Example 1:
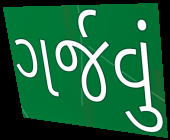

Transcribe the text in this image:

ગર્જવું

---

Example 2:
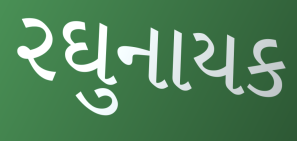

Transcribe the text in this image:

રઘુનાયક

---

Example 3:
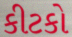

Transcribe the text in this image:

કીટકો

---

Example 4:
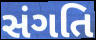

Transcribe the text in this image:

સંગતિ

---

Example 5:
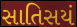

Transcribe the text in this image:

સાતિસયં